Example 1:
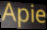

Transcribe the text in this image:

Apie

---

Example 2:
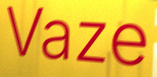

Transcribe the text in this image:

Vaze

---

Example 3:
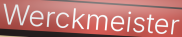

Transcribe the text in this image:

Werckmeister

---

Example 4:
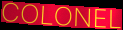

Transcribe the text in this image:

COLONEL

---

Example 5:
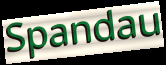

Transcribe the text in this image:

Spandau